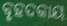
ବୃହଦକାୟ